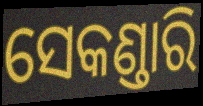
ସେକଣ୍ଡାରି